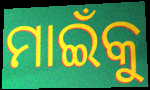
ମାଇଁକୁ